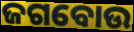
ଜଗବୋଉ